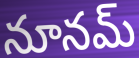
నూనమ్